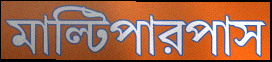
মাল্টিপারপাস